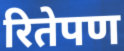
रितेपण